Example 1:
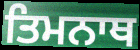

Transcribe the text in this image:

ਤਿਮਨਾਥ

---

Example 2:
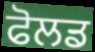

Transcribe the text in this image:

ਫੋਲਡ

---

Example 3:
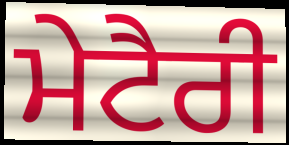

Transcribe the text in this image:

ਮੇਟੈਰੀ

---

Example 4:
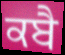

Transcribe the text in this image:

ਕਬੈ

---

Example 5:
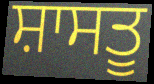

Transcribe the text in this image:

ਸ਼ਾਸਤੂ